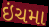
ઇંચમા